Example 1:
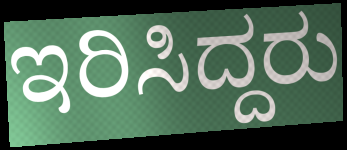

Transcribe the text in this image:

ಇರಿಸಿದ್ದರು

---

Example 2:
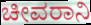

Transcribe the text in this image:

ಚೀವರಾನಿ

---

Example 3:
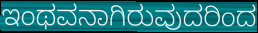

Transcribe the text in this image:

ಇಂಥವನಾಗಿರುವುದರಿಂದ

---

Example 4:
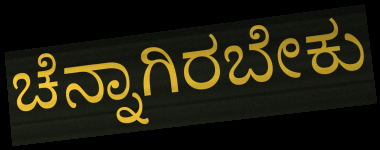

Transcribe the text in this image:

ಚೆನ್ನಾಗಿರಬೇಕು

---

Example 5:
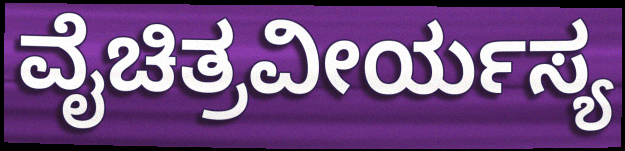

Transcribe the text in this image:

ವೈಚಿತ್ರವೀರ್ಯಸ್ಯ